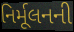
નિર્મૂલનની